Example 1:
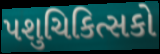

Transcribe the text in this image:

પશુચિકિત્સકો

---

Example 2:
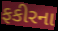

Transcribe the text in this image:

ફકીરના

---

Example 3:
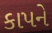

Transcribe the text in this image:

કાપને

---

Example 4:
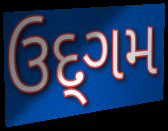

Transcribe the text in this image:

ઉદ્‌ગમ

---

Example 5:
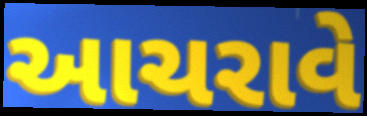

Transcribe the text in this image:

આચરાવે